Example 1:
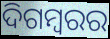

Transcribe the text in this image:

ଦିଗମ୍ୱରର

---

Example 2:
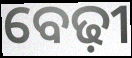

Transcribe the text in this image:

ବେଢ଼ୀ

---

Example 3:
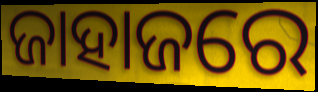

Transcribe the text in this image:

ଜାହାଜରେ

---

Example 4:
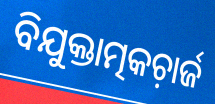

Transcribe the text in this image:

ବିଯୁକ୍ତାତ୍ମକଚ଼ାର୍ଜ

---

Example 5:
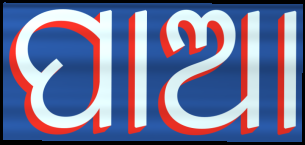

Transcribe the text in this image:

ପାଆ